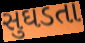
સુઘડતા